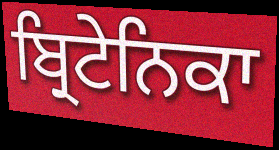
ਬ੍ਰਿਟੇਨਿਕਾ